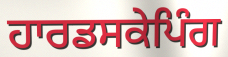
ਹਾਰਡਸਕੇਪਿੰਗ